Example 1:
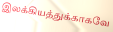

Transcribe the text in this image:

இலக்கியத்துக்காகவே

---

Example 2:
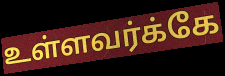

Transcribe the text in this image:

உள்ளவர்க்கே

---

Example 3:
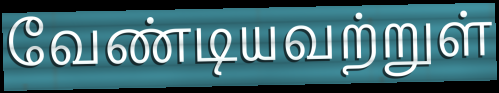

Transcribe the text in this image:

வேண்டியவற்றுள்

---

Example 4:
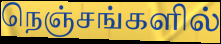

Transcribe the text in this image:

நெஞ்சங்களில்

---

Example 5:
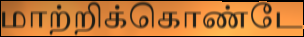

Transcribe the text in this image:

மாற்றிக்கொண்டே